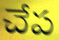
చేప